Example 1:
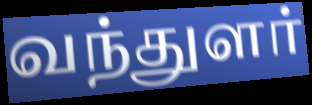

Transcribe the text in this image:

வந்துளர்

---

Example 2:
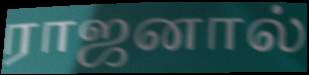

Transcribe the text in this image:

ராஜனால்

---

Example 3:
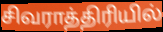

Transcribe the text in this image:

சிவராத்திரியில்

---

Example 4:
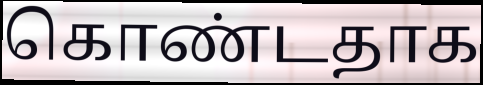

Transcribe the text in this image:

கொண்டதாக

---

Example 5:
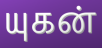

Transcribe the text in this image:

யுகன்